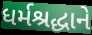
ધર્મશ્રદ્ધાને